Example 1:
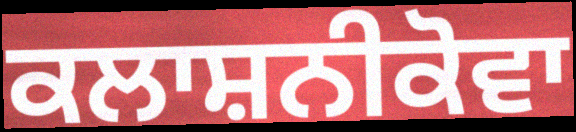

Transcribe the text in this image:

ਕਲਾਸ਼ਨੀਕੋਵਾ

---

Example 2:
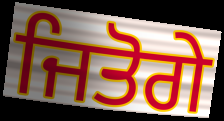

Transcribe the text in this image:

ਜਿਤੋਗੇ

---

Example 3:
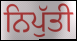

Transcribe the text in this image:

ਨਿਪੁੱਤੀ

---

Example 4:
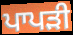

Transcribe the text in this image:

ਪਾਪੜੀ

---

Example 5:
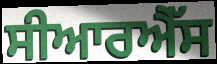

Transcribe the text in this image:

ਸੀਆਰਐੱਸ